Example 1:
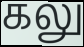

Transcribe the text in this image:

கலு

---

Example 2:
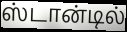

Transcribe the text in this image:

ஸ்டான்டில்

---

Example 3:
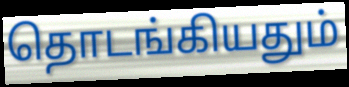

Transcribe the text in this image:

தொடங்கியதும்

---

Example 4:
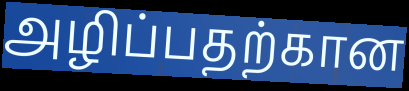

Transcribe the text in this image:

அழிப்பதற்கான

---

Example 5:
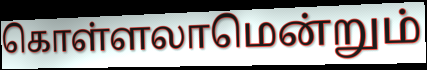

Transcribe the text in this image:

கொள்ளலாமென்றும்